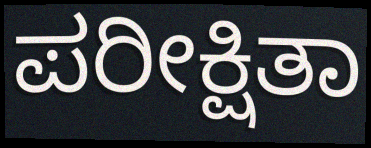
ಪರೀಕ್ಷಿತಾ